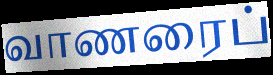
வாணரைப்